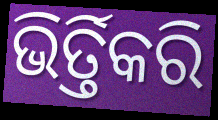
ଭିର୍ତ୍ତିକରି